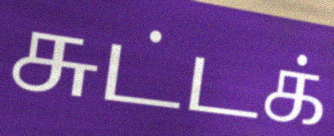
சுட்டக்